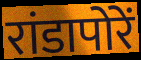
रांडापोरें